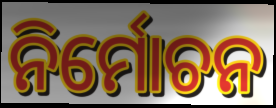
ନିର୍ମୋଚନ